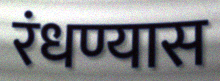
रंधण्यास